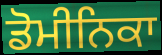
ਡੋਮੀਨਿਕਾ